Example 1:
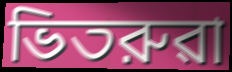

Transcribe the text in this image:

ভিতৰুৱা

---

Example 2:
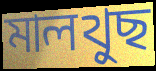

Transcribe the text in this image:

মালথুছ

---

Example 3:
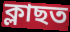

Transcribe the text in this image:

ক্লাছত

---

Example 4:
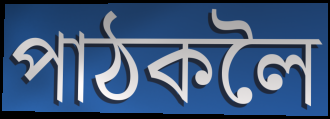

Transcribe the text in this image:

পাঠকলৈ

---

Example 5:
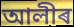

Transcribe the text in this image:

আলীৰ